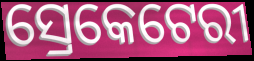
ସ୍ରେକେଟେରୀ